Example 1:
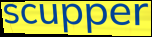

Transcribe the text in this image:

scupper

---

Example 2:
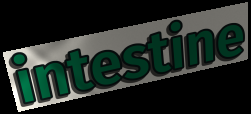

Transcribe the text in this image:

intestine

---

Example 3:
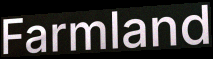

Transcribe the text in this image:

Farmland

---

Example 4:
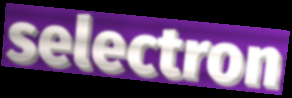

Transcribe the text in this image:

selectron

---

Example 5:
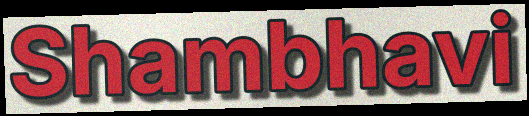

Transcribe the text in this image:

Shambhavi